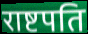
राष्टपति